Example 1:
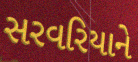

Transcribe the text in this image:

સરવરિયાને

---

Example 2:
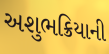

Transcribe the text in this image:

અશુભક્રિયાની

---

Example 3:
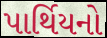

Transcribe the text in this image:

પાર્થિયનો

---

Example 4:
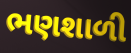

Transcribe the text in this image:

ભણશાળી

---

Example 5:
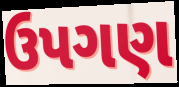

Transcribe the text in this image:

ઉપગણ